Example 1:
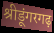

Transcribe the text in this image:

श्रीडूंगरगढ़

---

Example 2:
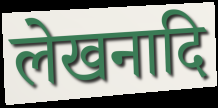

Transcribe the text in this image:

लेखनादि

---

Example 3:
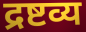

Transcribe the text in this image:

द्रष्टव्य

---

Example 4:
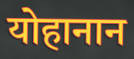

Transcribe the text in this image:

योहानान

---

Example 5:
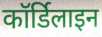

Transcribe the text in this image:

कॉर्डिलाइन